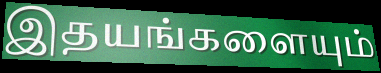
இதயங்களையும்